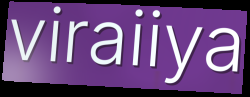
viraiiya